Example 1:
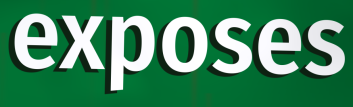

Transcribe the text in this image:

exposes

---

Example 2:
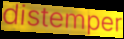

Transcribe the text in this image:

distemper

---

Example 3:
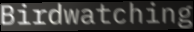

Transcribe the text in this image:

Birdwatching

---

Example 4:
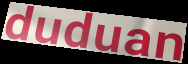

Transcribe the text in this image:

duduan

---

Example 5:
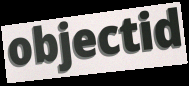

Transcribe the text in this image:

objectid